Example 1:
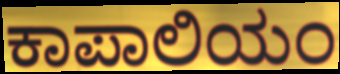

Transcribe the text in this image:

ಕಾಪಾಲಿಯಂ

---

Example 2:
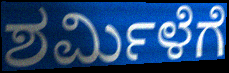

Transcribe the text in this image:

ಶರ್ಮಿಳೆಗೆ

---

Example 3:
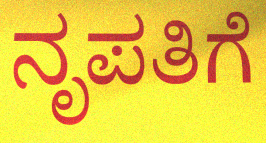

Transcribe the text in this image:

ನೃಪತಿಗೆ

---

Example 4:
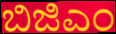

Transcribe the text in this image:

ಬಿಜಿಎಂ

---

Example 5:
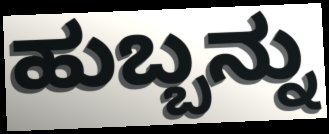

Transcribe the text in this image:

ಹುಬ್ಬನ್ನು